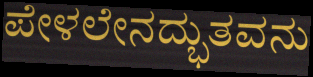
ಪೇಳಲೇನದ್ಭುತವನು